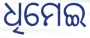
ଧିମେଇ